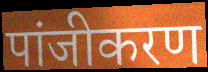
पांजीकरण